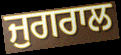
ਜੁਗਰਾਲ